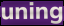
uning